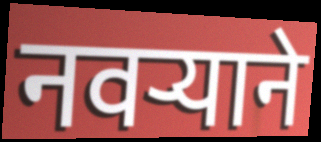
नवऱ्याने